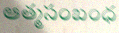
ఆత్మసంబంధ